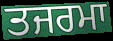
ਤਜਰਮਾ